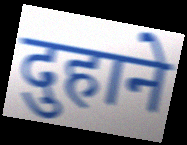
दुहाने